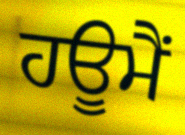
ਹਊਮੈਂ